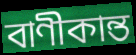
বাণীকান্ত